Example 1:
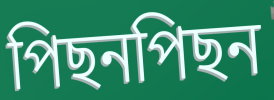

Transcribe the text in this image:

পিছনপিছন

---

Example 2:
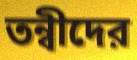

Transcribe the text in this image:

তন্বীদের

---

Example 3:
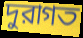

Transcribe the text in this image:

দুরাগত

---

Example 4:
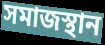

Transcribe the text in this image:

সমাজস্থান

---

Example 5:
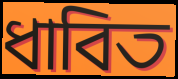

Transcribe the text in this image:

ধাবিত